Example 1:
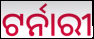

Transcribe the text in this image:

ଟର୍ନାରୀ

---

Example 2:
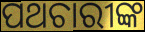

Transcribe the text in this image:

ପଥଚାରୀଙ୍କ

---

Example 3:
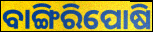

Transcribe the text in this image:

ବାଙ୍ଗିରିପୋଷି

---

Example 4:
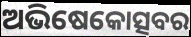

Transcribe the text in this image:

ଅଭିଷେକୋତ୍ସବର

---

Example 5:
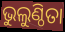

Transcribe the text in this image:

ଭୁଲୁଣ୍ଠିତା